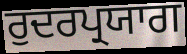
ਰੁਦਰਪ੍ਰਯਾਗ